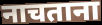
नाचताना